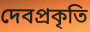
দেবপ্রকৃতি